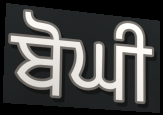
ਬੋਘੀ